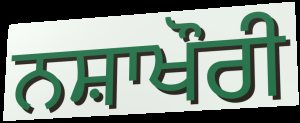
ਨਸ਼ਾਖੌਰੀ